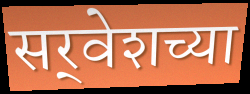
सर्वेशच्या